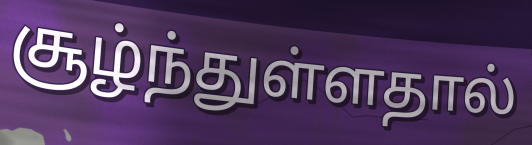
சூழ்ந்துள்ளதால்